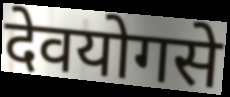
देवयोगसे